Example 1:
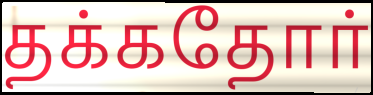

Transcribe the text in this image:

தக்கதோர்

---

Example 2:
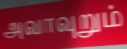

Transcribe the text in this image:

அவாவுறும்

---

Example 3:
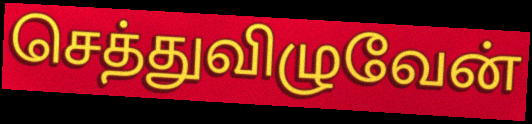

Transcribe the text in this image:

செத்துவிழுவேன்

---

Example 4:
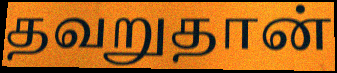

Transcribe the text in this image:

தவறுதான்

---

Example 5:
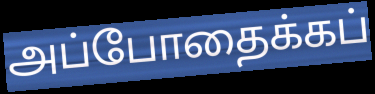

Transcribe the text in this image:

அப்போதைக்கப்